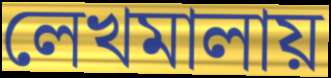
লেখমালায়